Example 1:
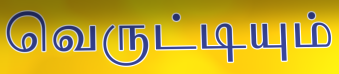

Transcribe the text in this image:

வெருட்டியும்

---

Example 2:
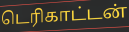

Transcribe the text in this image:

டெரிகாட்டன்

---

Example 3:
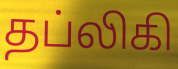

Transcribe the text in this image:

தப்லிகி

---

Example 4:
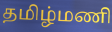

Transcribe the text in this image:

தமிழ்மணி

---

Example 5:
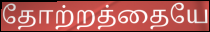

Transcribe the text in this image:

தோற்றத்தையே